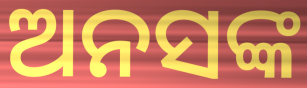
ଅନସଙ୍କ